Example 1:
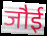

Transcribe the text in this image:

जौई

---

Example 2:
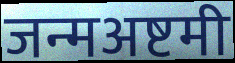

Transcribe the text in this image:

जन्मअष्टमी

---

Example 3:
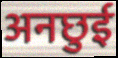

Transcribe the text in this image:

अनछुई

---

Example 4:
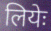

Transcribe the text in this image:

लियेः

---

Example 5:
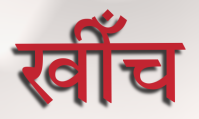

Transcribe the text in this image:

खीँच